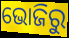
ଭୋଜିରୁ